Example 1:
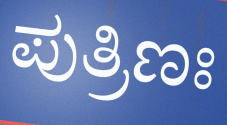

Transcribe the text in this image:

ಪುತ್ರಿಣಃ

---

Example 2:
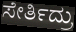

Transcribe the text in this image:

ಸೇರ್ತಿದ್ರು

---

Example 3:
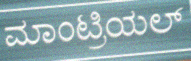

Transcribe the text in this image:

ಮಾಂಟ್ರಿಯಲ್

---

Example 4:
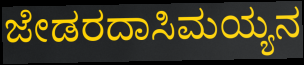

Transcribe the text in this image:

ಜೇಡರದಾಸಿಮಯ್ಯನ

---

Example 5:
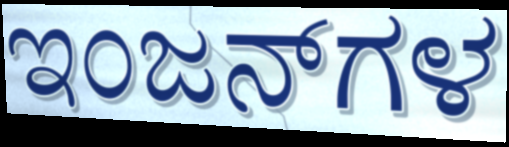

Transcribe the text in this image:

ಇಂಜನ್‌ಗಳ